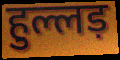
हुल्लड़